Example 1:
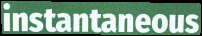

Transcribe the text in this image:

instantaneous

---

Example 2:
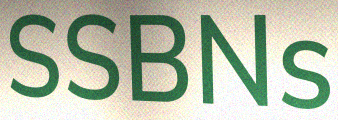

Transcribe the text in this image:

SSBNs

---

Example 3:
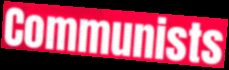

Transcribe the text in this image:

Communists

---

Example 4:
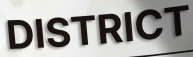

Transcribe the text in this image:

DISTRICT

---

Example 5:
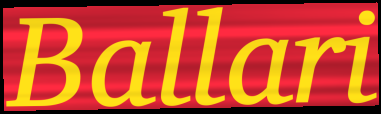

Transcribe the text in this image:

Ballari